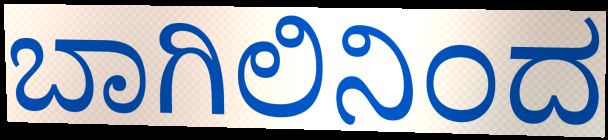
ಬಾಗಿಲಿನಿಂದ